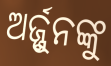
ଅର୍ଜ୍ଜୁନଙ୍କୁ